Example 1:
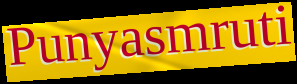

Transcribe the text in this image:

Punyasmruti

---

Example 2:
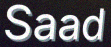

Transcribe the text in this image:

Saad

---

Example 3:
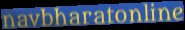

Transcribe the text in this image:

navbharatonline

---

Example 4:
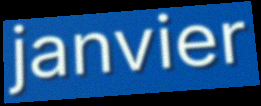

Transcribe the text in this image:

janvier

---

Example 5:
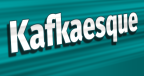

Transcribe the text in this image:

Kafkaesque